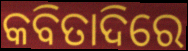
କବିତାଦିରେ